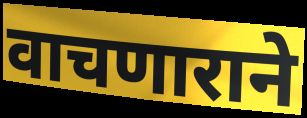
वाचणाराने